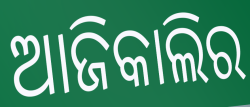
ଆଜିକାଲିର